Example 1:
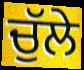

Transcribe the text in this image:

ਚੁੱਲੇ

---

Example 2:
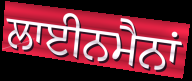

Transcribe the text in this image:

ਲਾਈਨਮੈਨਾਂ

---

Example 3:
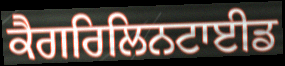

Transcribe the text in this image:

ਕੈਗਰਿਲਿਨਟਾਈਡ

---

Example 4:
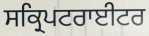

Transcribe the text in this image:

ਸਕ੍ਰਿਪਟਰਾਈਟਰ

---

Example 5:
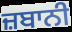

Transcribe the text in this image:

ਜ਼ਬਾਨੀ